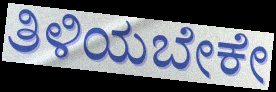
ತಿಳಿಯಬೇಕೇ